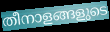
തീനാളങ്ങളുടെ